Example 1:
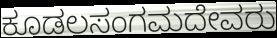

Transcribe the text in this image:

ಕೂಡಲಸಂಗಮದೇವರು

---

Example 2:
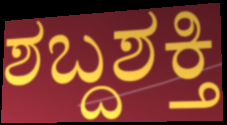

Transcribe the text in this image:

ಶಬ್ದಶಕ್ತಿ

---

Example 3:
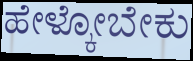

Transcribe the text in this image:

ಹೇಳ್ಕೋಬೇಕು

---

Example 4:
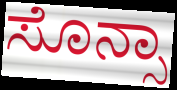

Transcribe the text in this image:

ಸೊನ್ಸಾ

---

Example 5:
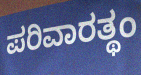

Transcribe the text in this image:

ಪರಿವಾರತ್ಥಂ